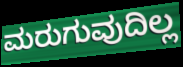
ಮರುಗುವುದಿಲ್ಲ